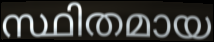
സ്ഥിതമായ